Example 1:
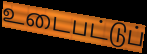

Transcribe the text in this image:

உடைபட்டுப்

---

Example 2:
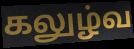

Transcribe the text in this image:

கலுழ்வ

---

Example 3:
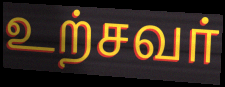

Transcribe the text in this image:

உற்சவர்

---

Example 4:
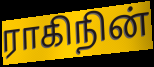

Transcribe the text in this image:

ராகிநின்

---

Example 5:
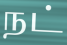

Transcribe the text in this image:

நட்